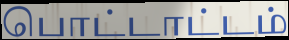
பொட்டாட்டம்